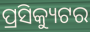
ପ୍ରସିକ୍ୟୁଟର